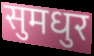
सुमधुर